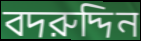
বদৰুদ্দিন